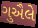
ગુઐલે